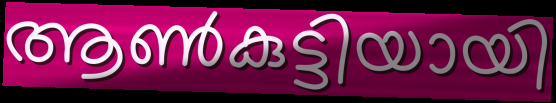
ആൺകുട്ടിയായി